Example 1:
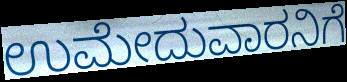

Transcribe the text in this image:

ಉಮೇದುವಾರನಿಗೆ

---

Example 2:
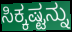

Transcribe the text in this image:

ಸಿಕ್ಕಷ್ಟನ್ನು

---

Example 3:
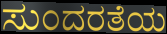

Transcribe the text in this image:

ಸುಂದರತೆಯ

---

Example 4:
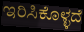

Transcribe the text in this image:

ಇರಿಸಿಕೊಳ್ಳದೆ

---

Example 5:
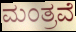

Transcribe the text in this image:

ಮಂತ್ರವೆ